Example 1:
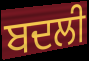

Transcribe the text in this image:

ਬਦਲੀ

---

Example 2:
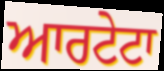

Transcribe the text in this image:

ਆਰਟੇਟਾ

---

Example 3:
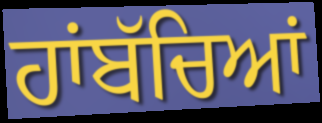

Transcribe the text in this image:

ਹਾਂਬੱਚਿਆਂ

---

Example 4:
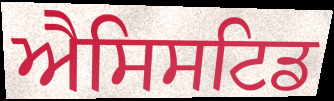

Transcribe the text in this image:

ਐਸਿਸਟਿਡ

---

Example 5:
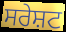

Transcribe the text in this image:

ਸਰੇਸ਼ਟ